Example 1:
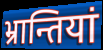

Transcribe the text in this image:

भ्रान्तियां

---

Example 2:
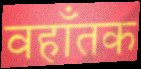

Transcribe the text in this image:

वहाँतक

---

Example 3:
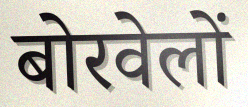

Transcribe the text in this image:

बोरवेलों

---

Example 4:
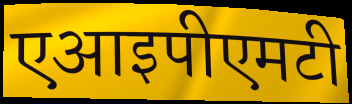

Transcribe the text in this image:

एआइपीएमटी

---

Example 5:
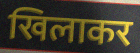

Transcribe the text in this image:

खिलाकर